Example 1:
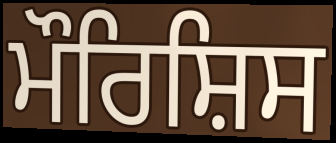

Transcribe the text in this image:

ਮੌਰਿਸ਼ਿਸ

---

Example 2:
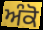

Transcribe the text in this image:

ਅੰਕੋ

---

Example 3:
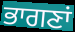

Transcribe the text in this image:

ਭਾਗਣਾਂ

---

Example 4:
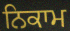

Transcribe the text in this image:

ਨਿਕਾਮ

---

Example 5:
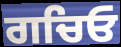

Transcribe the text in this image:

ਗਚਿਓ